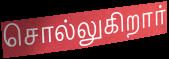
சொல்லுகிறார்